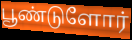
பூண்டுளோர்